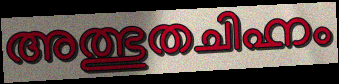
അത്ഭുതചിഹ്നം